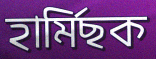
হাৰ্মিছক